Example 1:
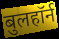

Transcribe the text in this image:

बुलहॉर्न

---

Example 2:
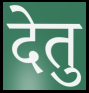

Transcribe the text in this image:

देतु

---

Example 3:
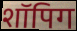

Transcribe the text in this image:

शॉपिग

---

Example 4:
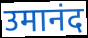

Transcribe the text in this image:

उमानंद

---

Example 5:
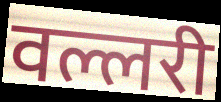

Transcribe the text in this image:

वल्लरी